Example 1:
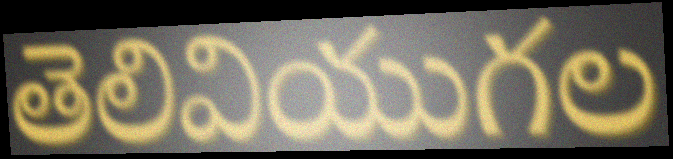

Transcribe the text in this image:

తెలివియుగల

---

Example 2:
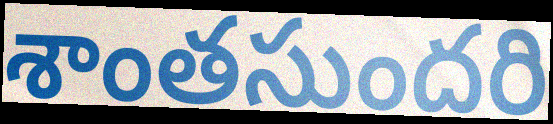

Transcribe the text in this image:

శాంతసుందరి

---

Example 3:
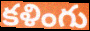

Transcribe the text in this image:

కళింగు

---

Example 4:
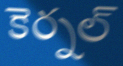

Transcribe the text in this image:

కెర్నల్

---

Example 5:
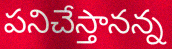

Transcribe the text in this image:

పనిచేస్తానన్న